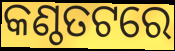
କଣ୍ଠତଟରେ